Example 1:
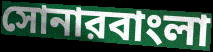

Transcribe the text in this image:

সোনারবাংলা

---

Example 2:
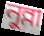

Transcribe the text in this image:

নুন্না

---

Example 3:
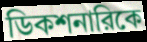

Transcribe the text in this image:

ডিকশনারিকে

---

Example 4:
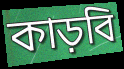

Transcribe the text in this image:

কাড়বি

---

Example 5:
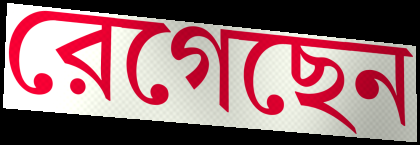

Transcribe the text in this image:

রেগেছেন